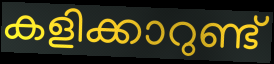
കളിക്കാറുണ്ട്